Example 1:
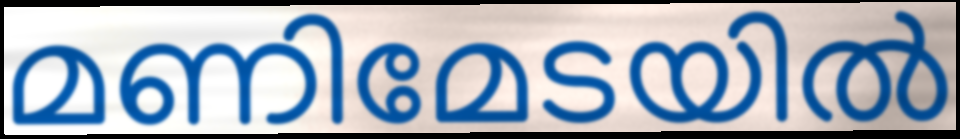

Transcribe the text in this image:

മണിമേടയിൽ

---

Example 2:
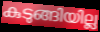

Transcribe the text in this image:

കുടുങ്ങിയില്ല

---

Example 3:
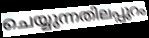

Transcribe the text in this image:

ചെയ്യുന്നതിലപ്പുറം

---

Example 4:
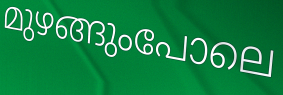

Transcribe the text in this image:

മുഴങ്ങുംപോലെ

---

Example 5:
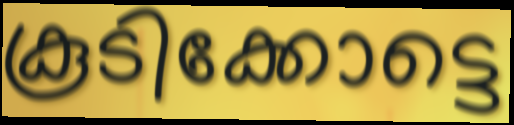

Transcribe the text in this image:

കൂടിക്കോട്ടെ